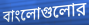
বাংলোগুলোর